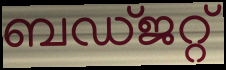
ബഡ്ജറ്റ്